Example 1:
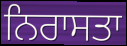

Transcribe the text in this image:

ਨਿਰਾਸਤਾ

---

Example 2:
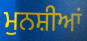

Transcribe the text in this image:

ਮੁਨਸ਼ੀਆਂ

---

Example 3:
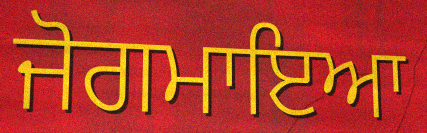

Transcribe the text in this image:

ਜੋਗਮਾਇਆ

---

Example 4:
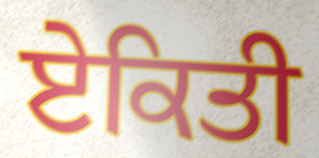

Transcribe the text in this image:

ਏਕਿਤੀ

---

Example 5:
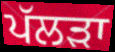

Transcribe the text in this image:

ਪੱਲੜਾ